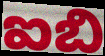
ఐబి